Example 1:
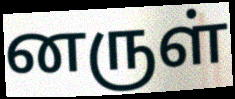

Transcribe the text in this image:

னருள்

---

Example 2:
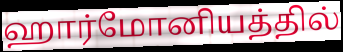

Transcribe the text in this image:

ஹார்மோனியத்தில்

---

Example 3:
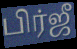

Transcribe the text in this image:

பிர்ஜீ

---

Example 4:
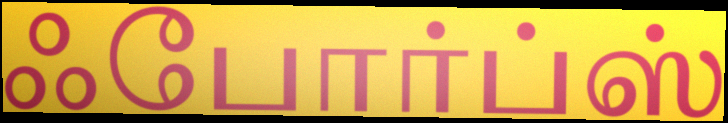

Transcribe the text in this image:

ஃபோர்ப்ஸ்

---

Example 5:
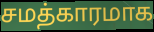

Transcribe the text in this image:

சமத்காரமாக